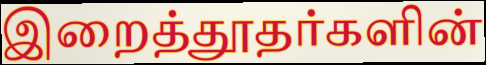
இறைத்தூதர்களின்